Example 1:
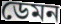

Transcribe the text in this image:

ডেমন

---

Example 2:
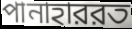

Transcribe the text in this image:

পানাহাররত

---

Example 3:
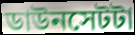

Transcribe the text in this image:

ডাউনসেটটা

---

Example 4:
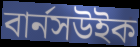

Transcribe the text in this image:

বার্নসউইক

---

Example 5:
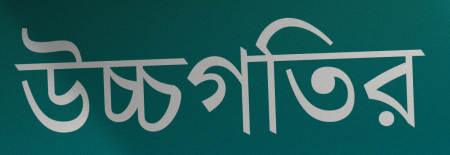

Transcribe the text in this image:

উচ্চগতির